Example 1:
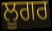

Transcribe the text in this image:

ਲੂਗਰ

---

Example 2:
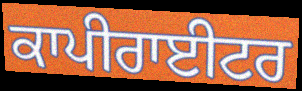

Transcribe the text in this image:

ਕਾਪੀਰਾਈਟਰ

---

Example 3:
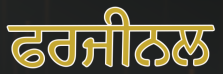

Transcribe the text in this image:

ਫਰਜੀਨਲ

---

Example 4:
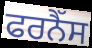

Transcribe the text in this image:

ਫਰਨੈੱਸ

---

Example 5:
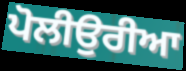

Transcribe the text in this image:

ਪੋਲੀਉਰੀਆ